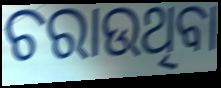
ଚରାଉଥିବା